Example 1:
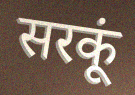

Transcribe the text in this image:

सरकूं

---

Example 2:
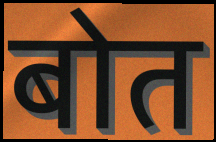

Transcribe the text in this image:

बोत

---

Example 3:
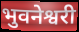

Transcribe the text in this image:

भुवनेश्वरी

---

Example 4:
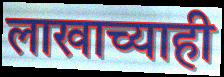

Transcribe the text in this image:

लाखाच्याही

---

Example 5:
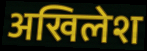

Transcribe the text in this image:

अखिलेश